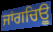
ਜਾਂਗਚਿਊ